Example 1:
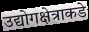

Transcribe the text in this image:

उद्योगक्षेत्राकडे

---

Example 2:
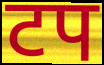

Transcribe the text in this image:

टप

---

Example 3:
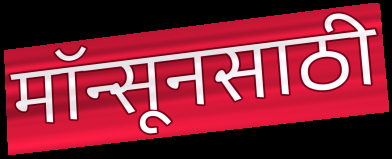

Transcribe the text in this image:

मॉन्सूनसाठी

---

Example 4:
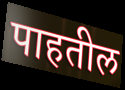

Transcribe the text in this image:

पाहतील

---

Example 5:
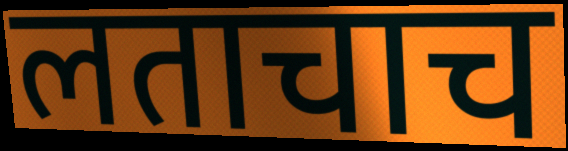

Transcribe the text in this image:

लताचाच